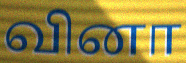
வினா